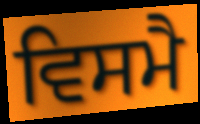
ਵਿਸਮੈ